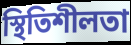
স্থিতিশীলতা